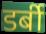
डर्बी